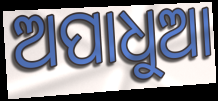
ଅପାଧୁଆ